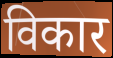
विकार